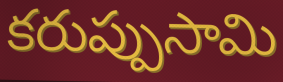
కరుప్పుసామి